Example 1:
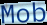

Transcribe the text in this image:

Mob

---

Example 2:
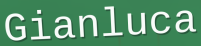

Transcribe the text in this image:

Gianluca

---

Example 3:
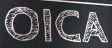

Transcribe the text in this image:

OICA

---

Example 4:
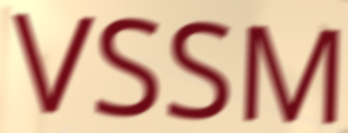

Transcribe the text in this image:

VSSM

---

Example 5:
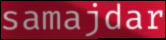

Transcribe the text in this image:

samajdar